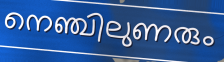
നെഞ്ചിലുണരും